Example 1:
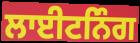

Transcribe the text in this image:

ਲਾਈਟਨਿੰਗ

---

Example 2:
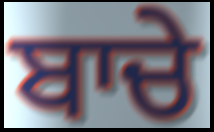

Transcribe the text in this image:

ਬਾਚੇ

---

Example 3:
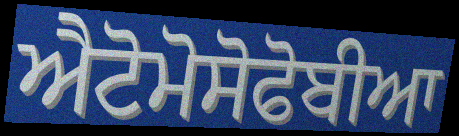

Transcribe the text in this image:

ਐਟੋਮੋਸੋਫੋਬੀਆ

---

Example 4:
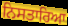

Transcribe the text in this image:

ਨਿਸਤਾਰਿਆ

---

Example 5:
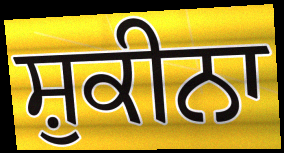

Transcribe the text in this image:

ਸ਼ੁਕੀਨਾ